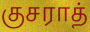
குசராத்